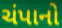
ચંપાનો